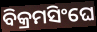
ବିକ୍ରମସିଂଘେ